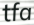
tfa